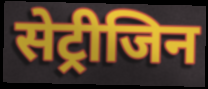
सेट्रीजिन